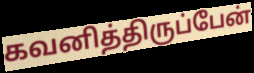
கவனித்திருப்பேன்